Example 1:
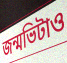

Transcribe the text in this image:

জন্মভিটাও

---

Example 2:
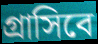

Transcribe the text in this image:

গ্রাসিবে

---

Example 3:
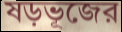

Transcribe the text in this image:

ষড়ভূজের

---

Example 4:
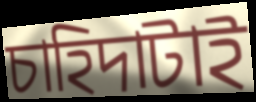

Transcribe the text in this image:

চাহিদাটাই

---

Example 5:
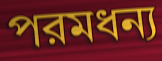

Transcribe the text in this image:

পরমধন্য